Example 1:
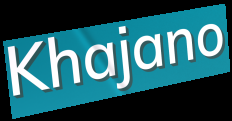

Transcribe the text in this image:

Khajano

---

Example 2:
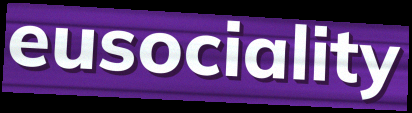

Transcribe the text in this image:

eusociality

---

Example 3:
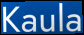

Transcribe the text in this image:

Kaula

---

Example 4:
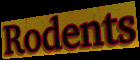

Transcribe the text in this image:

Rodents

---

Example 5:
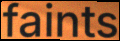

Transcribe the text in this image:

faints